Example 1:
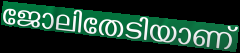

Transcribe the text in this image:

ജോലിതേടിയാണ്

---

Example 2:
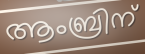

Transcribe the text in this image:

ആംബ്രിന്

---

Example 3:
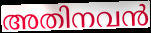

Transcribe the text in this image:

അതിനവൻ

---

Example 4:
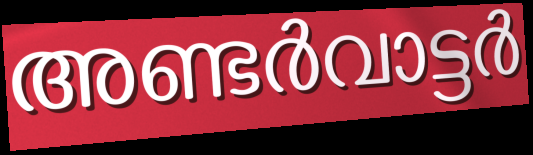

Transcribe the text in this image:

അണ്ടർവാട്ടർ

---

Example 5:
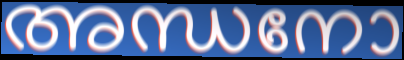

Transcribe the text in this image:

അന്ധനോ